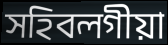
সহিবলগীয়া